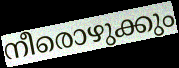
നീരൊഴുക്കും